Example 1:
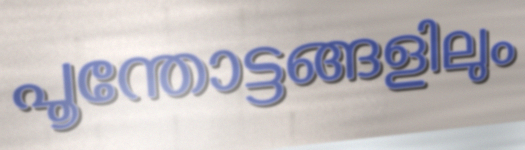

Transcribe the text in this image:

പൂന്തോട്ടങ്ങളിലും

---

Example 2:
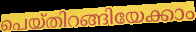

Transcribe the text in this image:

പെയ്തിറങ്ങിയേക്കാം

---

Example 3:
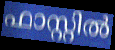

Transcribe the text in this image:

ഫാസ്റ്റിൽ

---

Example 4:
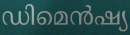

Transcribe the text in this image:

ഡിമെൻഷ്യ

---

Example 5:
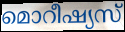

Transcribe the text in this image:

മൊറീഷ്യസ്